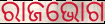
ରାଜଭୋଗ